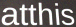
atthis